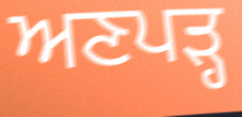
ਅਣਪੜ੍ਹ